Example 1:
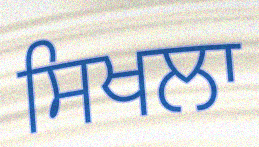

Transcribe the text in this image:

ਸਿਖਲਾ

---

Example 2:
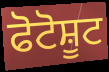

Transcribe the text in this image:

ਫੋਟੋਸ਼ੂਟ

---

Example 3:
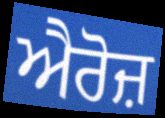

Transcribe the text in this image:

ਐਰੋਜ਼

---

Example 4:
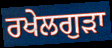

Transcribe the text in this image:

ਰਖੇਲਗੁੜਾ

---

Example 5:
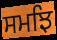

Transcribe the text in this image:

ਸਮਝਿ